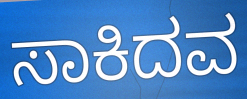
ಸಾಕಿದವ